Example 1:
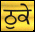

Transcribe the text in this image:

ਠੁਕੇ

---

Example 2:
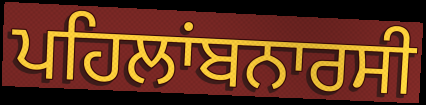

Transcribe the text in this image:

ਪਹਿਲਾਂਬਨਾਰਸੀ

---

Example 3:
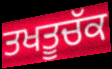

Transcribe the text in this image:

ਤਖਤੂਚੱਕ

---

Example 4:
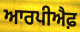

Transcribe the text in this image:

ਆਰਪੀਐਫ਼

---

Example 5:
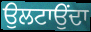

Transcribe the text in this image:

ਉਲਟਾਉਂਦਾ